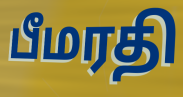
பீமரதி